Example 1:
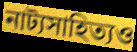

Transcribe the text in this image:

নাট্যসাহিত্যও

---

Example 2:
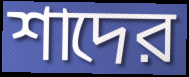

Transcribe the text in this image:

শাদের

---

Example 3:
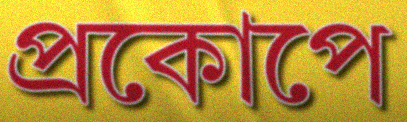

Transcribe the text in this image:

প্রকোপে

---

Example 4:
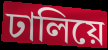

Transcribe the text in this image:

ঢালিয়ে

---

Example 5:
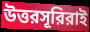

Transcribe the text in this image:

উত্তরসূরিরাই